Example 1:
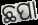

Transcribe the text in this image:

ଛପା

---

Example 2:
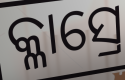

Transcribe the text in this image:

କ୍ଳାସ୍ରେ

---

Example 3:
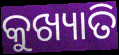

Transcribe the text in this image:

କୁଖ୍ୟାତି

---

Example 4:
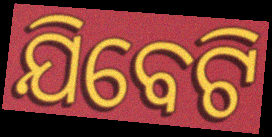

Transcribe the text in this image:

ଯିବେଟି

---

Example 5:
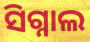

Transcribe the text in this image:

ସିଗ୍ନାଲ